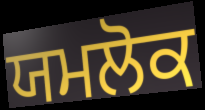
ਯਮਲੋਕ